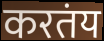
करतंय